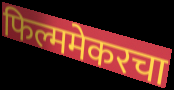
फिल्ममेकरचा